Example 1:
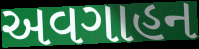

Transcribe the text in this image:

અવગાહન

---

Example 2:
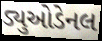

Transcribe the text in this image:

ડ્યુઓડેનલ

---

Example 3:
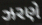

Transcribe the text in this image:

ઝરણે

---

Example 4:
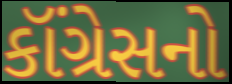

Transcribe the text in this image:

કૉંગ્રેસનો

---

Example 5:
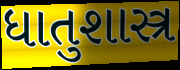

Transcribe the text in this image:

ધાતુશાસ્ત્ર